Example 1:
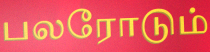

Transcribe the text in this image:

பலரோடும்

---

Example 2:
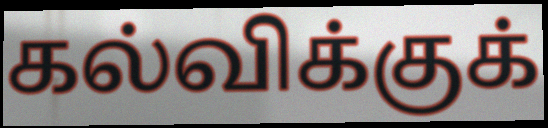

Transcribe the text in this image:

கல்விக்குக்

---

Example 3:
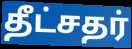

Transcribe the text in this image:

தீட்சதர்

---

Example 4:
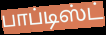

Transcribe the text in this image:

பாப்டிஸ்ட்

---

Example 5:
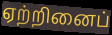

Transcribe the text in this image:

ஏற்றினைப்